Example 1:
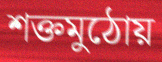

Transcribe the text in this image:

শক্তমুঠোয়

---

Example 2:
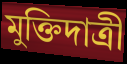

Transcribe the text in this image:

মুক্তিদাত্রী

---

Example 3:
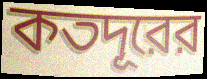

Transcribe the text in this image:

কতদূরের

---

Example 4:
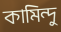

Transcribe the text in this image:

কামিন্দু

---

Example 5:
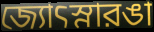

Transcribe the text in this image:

জ্যোৎস্নারঙা